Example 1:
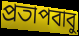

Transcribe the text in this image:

প্রতাপবাবু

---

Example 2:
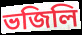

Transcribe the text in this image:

ভজিলি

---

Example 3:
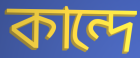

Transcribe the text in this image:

কান্দে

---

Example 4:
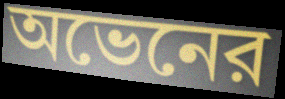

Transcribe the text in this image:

অভেনের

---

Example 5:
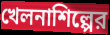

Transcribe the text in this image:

খেলনাশিল্পের